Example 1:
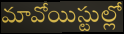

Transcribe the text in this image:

మావోయిస్టుల్లో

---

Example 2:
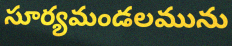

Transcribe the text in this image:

సూర్యమండలమును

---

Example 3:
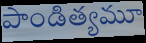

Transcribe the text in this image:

పాండిత్యమూ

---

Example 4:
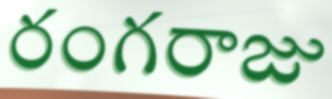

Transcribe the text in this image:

రంగరాజు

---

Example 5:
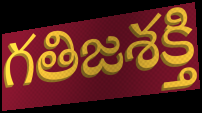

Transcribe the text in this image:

గతిజశక్తి